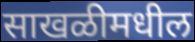
साखळीमधील